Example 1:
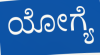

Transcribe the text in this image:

ಯೋಗ್ಯೆ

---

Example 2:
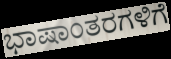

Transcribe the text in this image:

ಭಾಷಾಂತರಗಳಿಗೆ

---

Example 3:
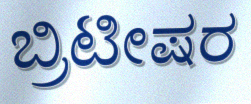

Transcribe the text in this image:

ಬ್ರಿಟೀಷರ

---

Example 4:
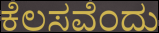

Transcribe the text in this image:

ಕೆಲಸವೆಂದು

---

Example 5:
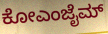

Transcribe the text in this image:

ಕೋಎಂಜೈಮ್